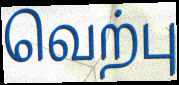
வெற்பு